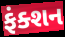
ફંક્શન